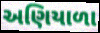
અણિયાળા